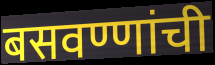
बसवण्णांची